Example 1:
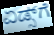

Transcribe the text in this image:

ಏಡ್ಸ್‌ಗೆ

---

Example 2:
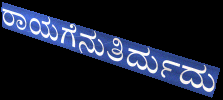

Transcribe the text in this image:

ರಾಯಗೆನುತಿರ್ದುದು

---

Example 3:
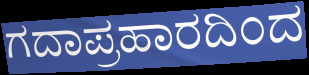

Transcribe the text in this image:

ಗದಾಪ್ರಹಾರದಿಂದ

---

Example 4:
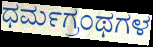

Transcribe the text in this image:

ಧರ್ಮಗ್ರಂಥಗಳ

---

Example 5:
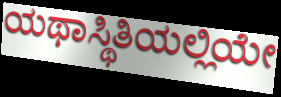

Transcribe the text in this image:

ಯಥಾಸ್ಥಿತಿಯಲ್ಲಿಯೇ